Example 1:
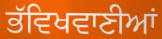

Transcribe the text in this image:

ਭੱਵਿਖਵਾਣੀਆਂ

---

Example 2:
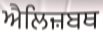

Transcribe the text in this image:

ਐਲਿਜ਼ਬਥ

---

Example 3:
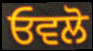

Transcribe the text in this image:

ਓਵਲੋ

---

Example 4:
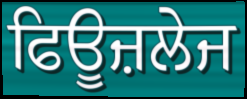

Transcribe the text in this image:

ਫਿਊਜ਼ਲੇਜ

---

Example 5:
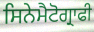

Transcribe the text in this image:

ਸਿਨੇਮੈਟੋਗ੍ਰਾਫੀ